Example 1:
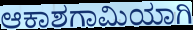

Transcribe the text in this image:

ಆಕಾಶಗಾಮಿಯಾಗಿ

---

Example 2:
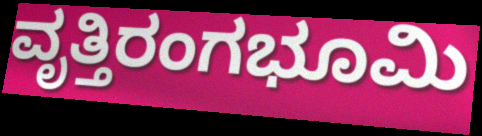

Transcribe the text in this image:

ವೃತ್ತಿರಂಗಭೂಮಿ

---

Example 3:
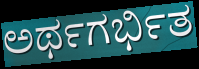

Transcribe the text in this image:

ಅರ್ಥಗರ್ಭಿತ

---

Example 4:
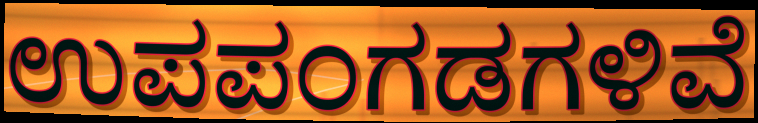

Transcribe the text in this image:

ಉಪಪಂಗಡಗಳಿವೆ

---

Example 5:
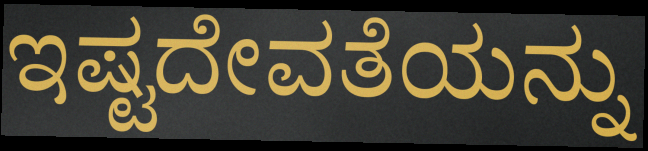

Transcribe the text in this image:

ಇಷ್ಟದೇವತೆಯನ್ನು